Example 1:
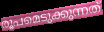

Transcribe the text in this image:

രൂപമെടുക്കുന്നത്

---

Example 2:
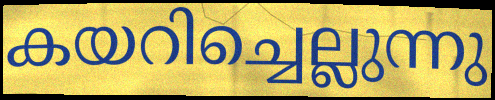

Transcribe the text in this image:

കയറിച്ചെല്ലുന്നു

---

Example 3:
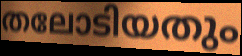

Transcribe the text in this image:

തലോടിയതും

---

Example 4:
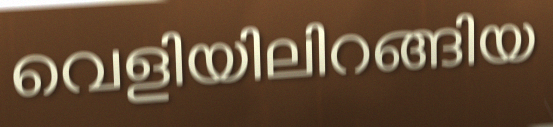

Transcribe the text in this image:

വെളിയിലിറങ്ങിയ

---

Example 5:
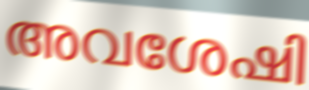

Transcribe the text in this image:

അവശേഷി